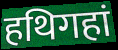
हथिगहां